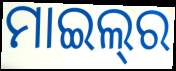
ମାଇଲ୍‍ର